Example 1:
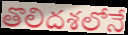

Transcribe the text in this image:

తొలిదశలోనే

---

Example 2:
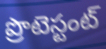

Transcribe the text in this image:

ప్రొటెస్టంట్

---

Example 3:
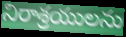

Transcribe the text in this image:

నిరాశ్రయులను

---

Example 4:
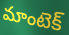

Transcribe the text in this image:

మాంటెక్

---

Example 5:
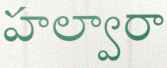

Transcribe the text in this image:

హల్వారా